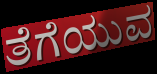
ತೆಗೆಯುವ